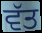
ਵੱਤ